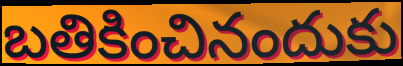
బతికించినందుకు